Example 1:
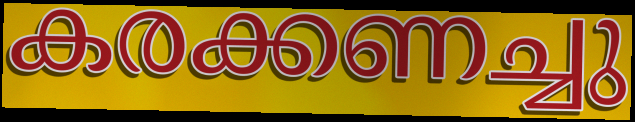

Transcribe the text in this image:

കരക്കണച്ചു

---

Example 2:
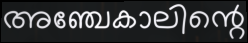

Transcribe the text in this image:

അഞ്ചേകാലിന്റെ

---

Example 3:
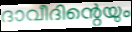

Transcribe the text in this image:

ദാവീദിന്റെയും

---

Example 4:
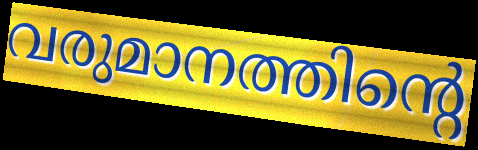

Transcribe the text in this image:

വരുമാനത്തിന്റെ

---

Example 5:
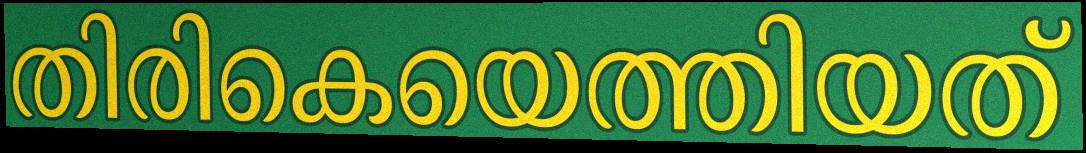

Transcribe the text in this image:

തിരികെയെത്തിയത്